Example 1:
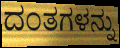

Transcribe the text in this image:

ದಂತಗಳನ್ನು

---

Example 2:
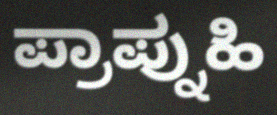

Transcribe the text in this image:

ಪ್ರಾಪ್ನುಹಿ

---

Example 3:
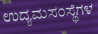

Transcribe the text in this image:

ಉದ್ಯಮಸಂಸ್ಥೆಗಳ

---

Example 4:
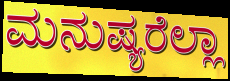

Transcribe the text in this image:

ಮನುಷ್ಯರೆಲ್ಲಾ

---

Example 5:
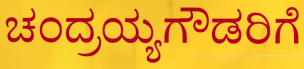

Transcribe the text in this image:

ಚಂದ್ರಯ್ಯಗೌಡರಿಗೆ